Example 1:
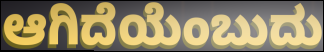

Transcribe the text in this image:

ಆಗಿದೆಯೆಂಬುದು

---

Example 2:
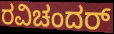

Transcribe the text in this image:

ರವಿಚಂದರ್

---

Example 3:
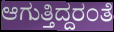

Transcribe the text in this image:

ಆಗುತ್ತಿದ್ದರಂತೆ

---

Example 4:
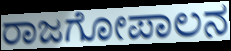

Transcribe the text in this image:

ರಾಜಗೋಪಾಲನ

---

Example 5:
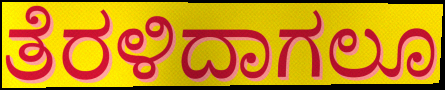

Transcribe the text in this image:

ತೆರಳಿದಾಗಲೂ